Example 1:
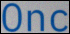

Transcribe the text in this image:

Onc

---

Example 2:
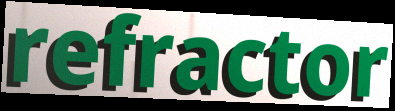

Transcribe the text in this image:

refractor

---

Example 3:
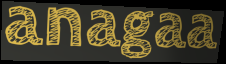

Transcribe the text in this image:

anagaa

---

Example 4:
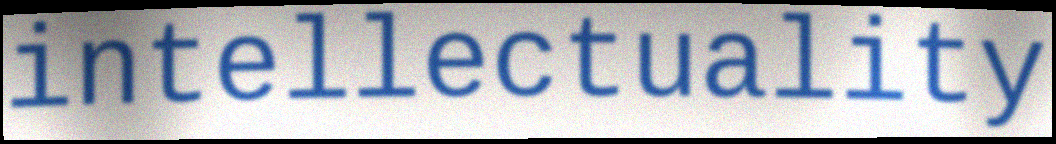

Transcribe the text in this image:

intellectuality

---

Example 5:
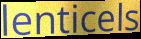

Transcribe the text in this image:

lenticels